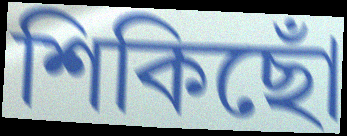
শিকিছোঁ